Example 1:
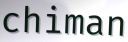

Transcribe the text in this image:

chiman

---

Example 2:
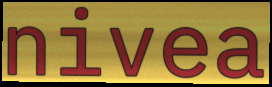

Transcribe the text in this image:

nivea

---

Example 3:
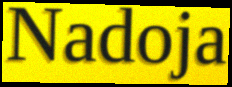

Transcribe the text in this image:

Nadoja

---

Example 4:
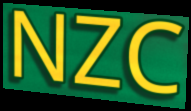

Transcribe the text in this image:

NZC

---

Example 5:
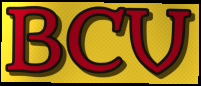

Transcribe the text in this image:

BCU